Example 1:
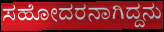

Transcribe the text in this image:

ಸಹೋದರನಾಗಿದ್ದನು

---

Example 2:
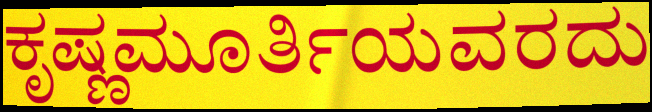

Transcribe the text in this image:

ಕೃಷ್ಣಮೂರ್ತಿಯವರದು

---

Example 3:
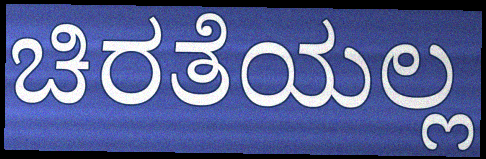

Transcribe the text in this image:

ಚಿರತೆಯಲ್ಲ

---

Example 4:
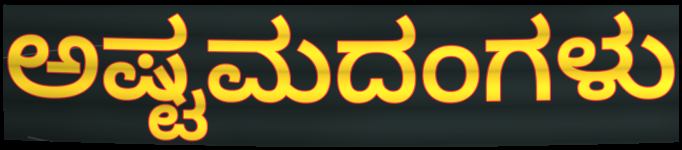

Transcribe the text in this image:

ಅಷ್ಟಮದಂಗಳು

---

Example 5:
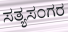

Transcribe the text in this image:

ಸತ್ಯಸಂಗರ